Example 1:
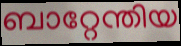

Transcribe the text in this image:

ബാറ്റേന്തിയ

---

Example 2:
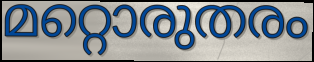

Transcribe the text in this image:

മറ്റൊരുതരം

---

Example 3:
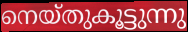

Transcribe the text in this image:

നെയ്തുകൂട്ടുന്നു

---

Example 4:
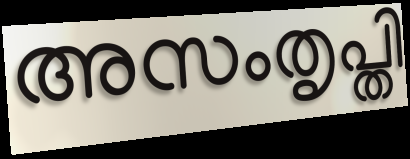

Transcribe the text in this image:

അസംതൃപ്തി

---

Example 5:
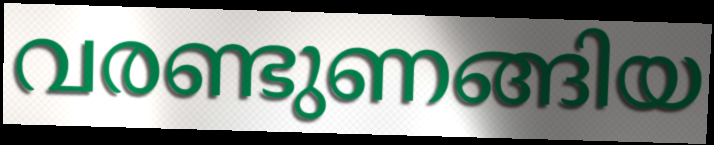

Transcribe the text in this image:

വരണ്ടുണങ്ങിയ